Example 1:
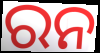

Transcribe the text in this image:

ରନ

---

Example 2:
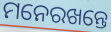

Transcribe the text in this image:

ମନେରଖନ୍ତେ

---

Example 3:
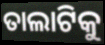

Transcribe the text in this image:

ତାଲାଟିକୁ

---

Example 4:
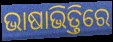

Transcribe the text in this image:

ଭାଷାଭିତ୍ତିରେ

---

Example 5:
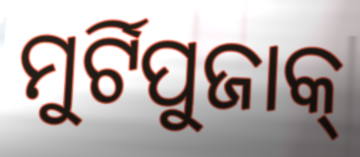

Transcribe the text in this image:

ମୁର୍ଟିପୁଜାକ୍